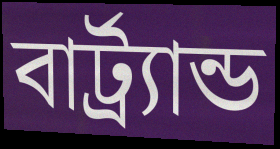
বার্ট্র্যান্ড